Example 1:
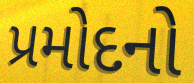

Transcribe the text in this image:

પ્રમોદનો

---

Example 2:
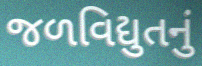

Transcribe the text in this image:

જળવિદ્યુતનું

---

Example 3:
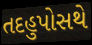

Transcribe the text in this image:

તદહુપોસથે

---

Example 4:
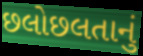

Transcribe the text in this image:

છલોછલતાનું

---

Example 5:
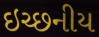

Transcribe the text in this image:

ઇચ્છનીય